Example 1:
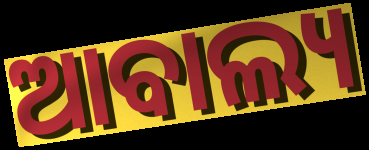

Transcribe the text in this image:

ଆବାଲ୍ୟ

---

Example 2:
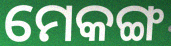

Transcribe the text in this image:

ମେକଙ୍ଗ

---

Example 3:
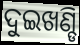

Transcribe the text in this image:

ଦୁଇଖଣ୍ଡି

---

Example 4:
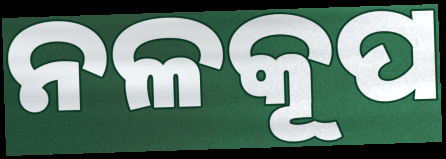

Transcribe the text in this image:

ନଳକୂପ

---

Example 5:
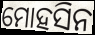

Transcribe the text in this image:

ମୋହସିନ